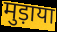
मुड़ाया